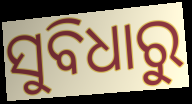
ସୁବିଧାରୁ